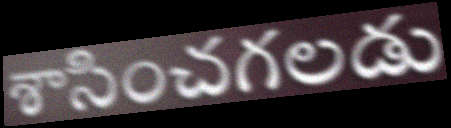
శాసించగలడు